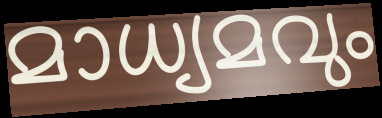
മാധ്യമവും